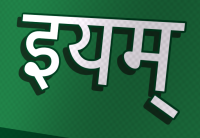
इयम्